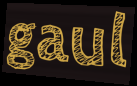
gaul